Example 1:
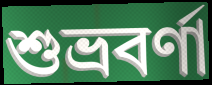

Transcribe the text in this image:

শুভ্রবর্ণা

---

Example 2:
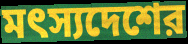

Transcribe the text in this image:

মৎস্যদেশের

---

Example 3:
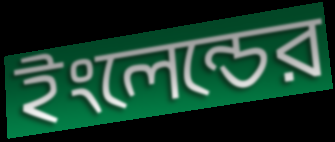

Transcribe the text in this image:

ইংলেন্ডের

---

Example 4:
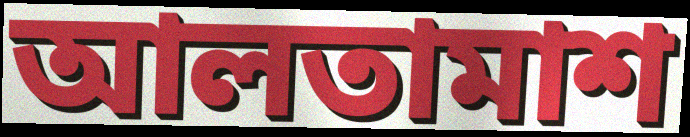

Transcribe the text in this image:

আলতামাশ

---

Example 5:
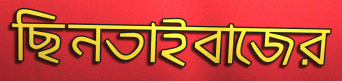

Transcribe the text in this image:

ছিনতাইবাজের